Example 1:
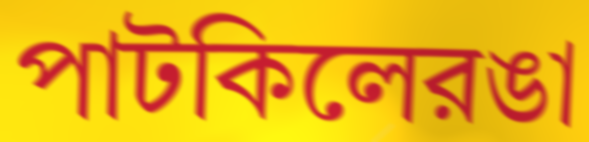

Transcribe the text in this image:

পাটকিলেরঙা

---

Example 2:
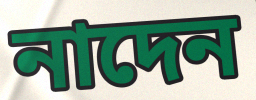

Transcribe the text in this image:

নাদেন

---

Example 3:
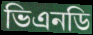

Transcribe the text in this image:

ভিএনডি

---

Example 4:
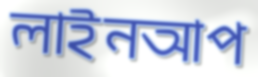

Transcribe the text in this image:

লাইনআপ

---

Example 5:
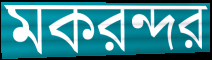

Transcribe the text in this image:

মকরন্দর